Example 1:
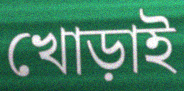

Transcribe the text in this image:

খোড়াই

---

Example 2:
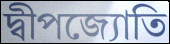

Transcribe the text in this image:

দ্বীপজ্যোতি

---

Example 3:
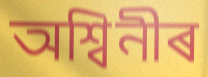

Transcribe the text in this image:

অশ্বিনীৰ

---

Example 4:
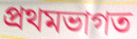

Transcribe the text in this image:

প্ৰথমভাগত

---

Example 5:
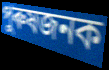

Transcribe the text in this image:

পুৰুষজনক